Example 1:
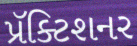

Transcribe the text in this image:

પ્રૅક્ટિશનર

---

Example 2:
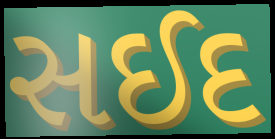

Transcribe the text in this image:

સઈદ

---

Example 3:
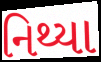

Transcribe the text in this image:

નિથ્યા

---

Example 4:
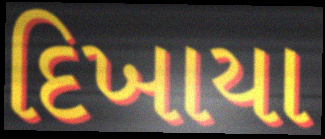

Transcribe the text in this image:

દિખાયા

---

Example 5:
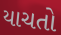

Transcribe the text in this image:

યાચતો